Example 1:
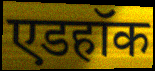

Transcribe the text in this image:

एडहॉक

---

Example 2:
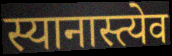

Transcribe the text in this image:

स्यानास्त्येव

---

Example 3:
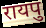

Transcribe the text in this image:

रायपु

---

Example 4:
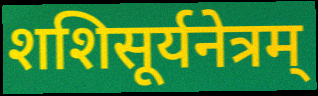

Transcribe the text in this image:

शशिसूर्यनेत्रम्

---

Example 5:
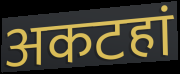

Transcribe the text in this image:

अकटहां